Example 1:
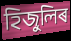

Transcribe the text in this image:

হিজুলিৰ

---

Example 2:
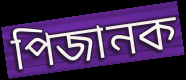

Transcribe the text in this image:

পিজানক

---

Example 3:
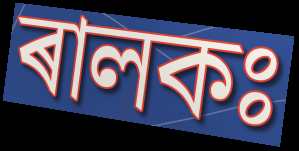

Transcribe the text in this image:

ৰালকঃ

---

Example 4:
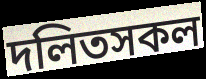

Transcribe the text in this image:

দলিতসকল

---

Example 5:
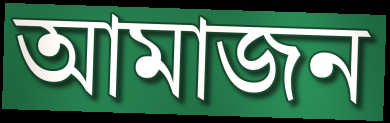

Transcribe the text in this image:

আমাজন